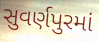
સુવર્ણપુરમાં